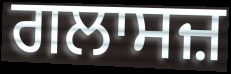
ਗਲਾਸਜ਼